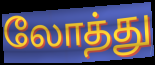
லோத்து